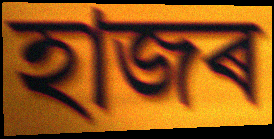
হাজৰ